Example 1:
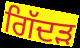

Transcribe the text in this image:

ਗਿੱਦਡ਼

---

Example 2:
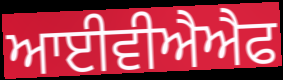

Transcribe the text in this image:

ਆਈਵੀਐਐਫ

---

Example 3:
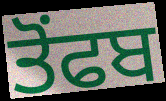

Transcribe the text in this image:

ਤੋਂਫਬ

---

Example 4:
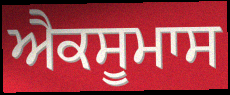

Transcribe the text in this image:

ਐਕਸੂਮਾਸ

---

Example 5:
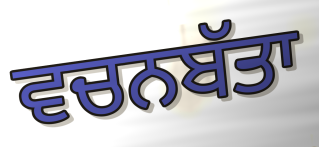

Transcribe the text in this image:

ਵਚਨਬੱਤਾ